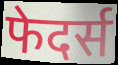
फेदर्स